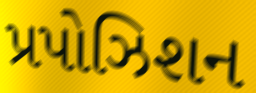
પ્રપોઝિશન